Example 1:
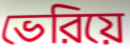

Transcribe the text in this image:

ভেরিয়ে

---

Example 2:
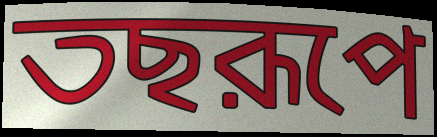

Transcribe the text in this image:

তছরূপে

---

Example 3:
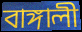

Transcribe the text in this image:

বাঙ্গালী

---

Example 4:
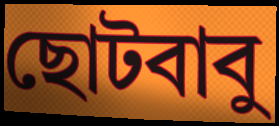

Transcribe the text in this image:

ছোটবাবু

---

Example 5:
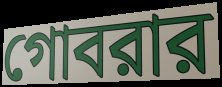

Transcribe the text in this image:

গোবরার